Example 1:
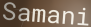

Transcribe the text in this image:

Samani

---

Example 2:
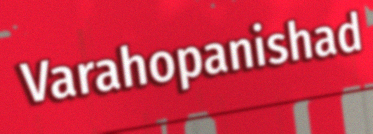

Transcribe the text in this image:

Varahopanishad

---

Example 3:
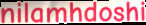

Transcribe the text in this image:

nilamhdoshi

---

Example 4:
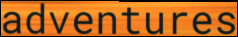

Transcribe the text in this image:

adventures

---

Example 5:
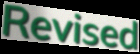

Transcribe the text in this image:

Revised